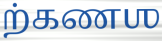
ற்கணஶ